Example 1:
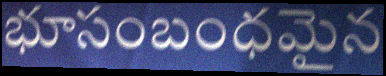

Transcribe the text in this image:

భూసంబంధమైన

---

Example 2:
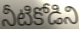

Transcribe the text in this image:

నీటికోడిని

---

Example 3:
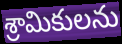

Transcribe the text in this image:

శ్రామికులను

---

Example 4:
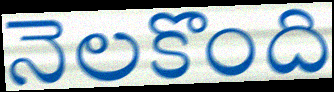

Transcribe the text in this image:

నెలకొంది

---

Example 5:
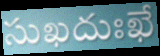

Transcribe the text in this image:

సుఖదుఃఖే